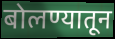
बोलण्यातून